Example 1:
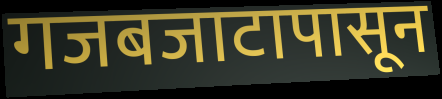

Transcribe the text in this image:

गजबजाटापासून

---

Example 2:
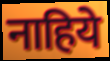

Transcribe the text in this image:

नाहिये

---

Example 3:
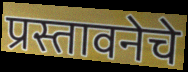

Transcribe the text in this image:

प्रस्तावनेचे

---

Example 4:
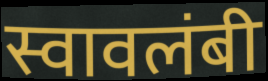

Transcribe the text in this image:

स्वावलंबी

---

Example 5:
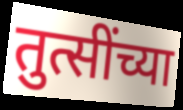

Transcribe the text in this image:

तुत्सींच्या